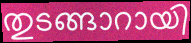
തുടങ്ങാറായി